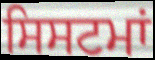
ਸਿਸਟਮਾਂ